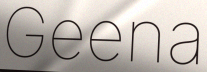
Geena